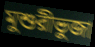
মুশুরীভুজা